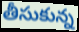
తీసుకున్న